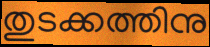
തുടക്കത്തിനു